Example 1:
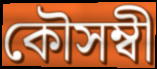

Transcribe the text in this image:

কৌসম্বী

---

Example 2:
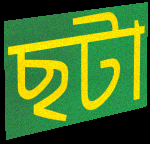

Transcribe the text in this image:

ছটা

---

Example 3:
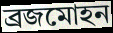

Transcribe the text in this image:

ব্ৰজমোহন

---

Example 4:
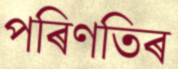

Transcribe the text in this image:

পৰিণতিৰ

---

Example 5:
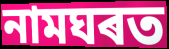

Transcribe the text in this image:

নামঘৰত